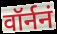
वॉर्ननं